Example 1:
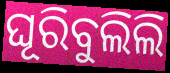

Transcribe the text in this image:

ଘୂରିବୁଲିଲି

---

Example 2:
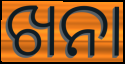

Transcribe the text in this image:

ଖନା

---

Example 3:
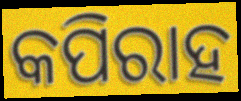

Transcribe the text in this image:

କପିରାହ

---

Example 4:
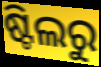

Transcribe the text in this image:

ଷ୍ଟିଲରୁ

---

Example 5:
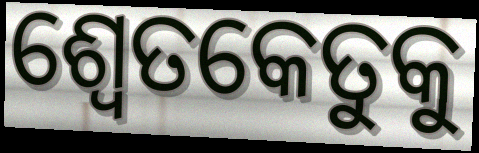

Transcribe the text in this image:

ଶ୍ୱେତକେତୁକୁ